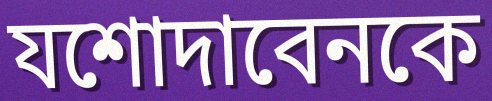
যশোদাবেনকে